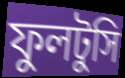
ফুলটুসি